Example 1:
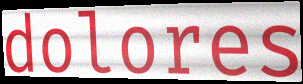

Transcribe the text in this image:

dolores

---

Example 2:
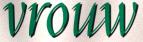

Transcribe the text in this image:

vrouw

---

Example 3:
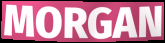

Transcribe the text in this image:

MORGAN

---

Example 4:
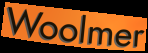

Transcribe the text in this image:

Woolmer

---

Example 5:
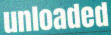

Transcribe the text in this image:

unloaded